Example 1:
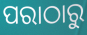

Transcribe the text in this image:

ପରାଠାରୁ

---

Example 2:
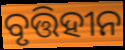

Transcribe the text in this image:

ବୃତ୍ତିହୀନ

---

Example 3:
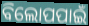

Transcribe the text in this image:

ବିଲୋପପାଇଁ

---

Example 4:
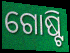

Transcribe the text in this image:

ଗୋଷ୍ଟି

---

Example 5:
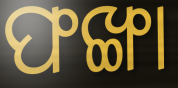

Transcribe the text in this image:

ଫଙ୍ଖା